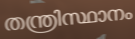
തന്ത്രിസ്ഥാനം